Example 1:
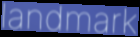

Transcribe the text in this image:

landmark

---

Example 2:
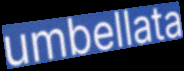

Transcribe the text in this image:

umbellata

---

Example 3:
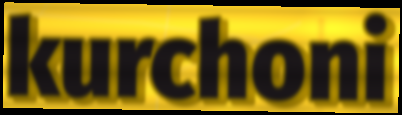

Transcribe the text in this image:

kurchoni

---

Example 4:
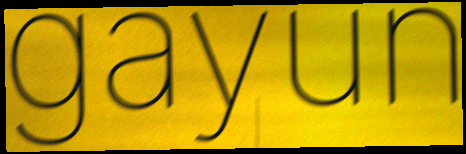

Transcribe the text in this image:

gayun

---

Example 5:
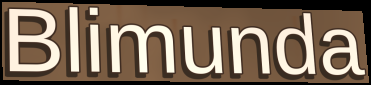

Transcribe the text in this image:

Blimunda